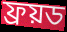
ফ্ৰয়ড